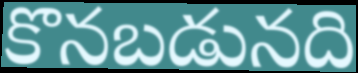
కొనబడునది